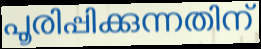
പൂരിപ്പിക്കുന്നതിന്